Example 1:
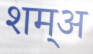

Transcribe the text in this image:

शम्अ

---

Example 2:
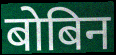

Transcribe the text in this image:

बोबिन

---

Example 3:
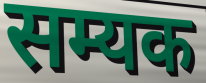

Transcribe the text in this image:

सम्यक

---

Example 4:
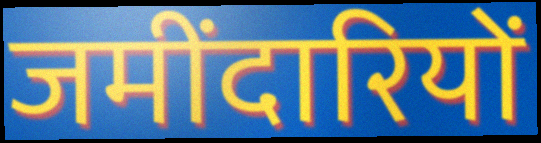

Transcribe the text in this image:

जमींदारियों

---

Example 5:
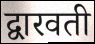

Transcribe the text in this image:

द्वारवती